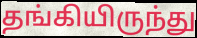
தங்கியிருந்து